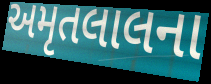
અમૃતલાલના